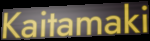
Kaitamaki